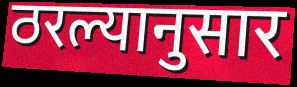
ठरल्यानुसार